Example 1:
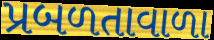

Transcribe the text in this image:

પ્રબળતાવાળા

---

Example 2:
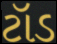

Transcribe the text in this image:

ટૉડ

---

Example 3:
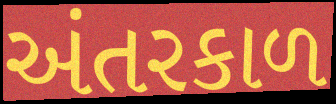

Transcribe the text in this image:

અંતરકાળ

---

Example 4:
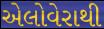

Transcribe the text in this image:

એલોવેરાથી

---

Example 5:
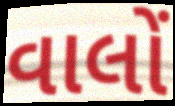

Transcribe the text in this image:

વાલોં